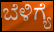
ಬೆಳಿಗ್ಯೆ